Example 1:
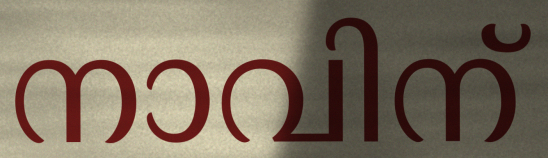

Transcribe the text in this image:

നാവിന്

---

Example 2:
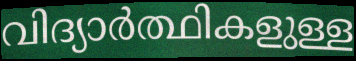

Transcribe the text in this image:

വിദ്യാർത്ഥികളുള്ള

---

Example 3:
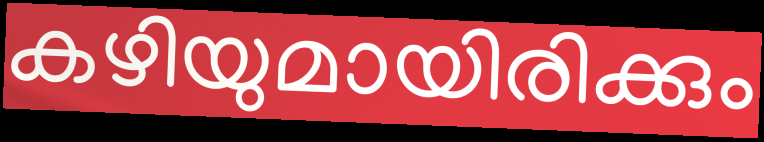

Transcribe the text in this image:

കഴിയുമായിരിക്കും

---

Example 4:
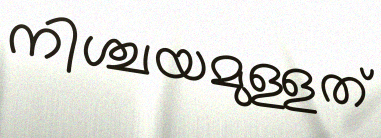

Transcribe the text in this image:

നിശ്ചയമുള്ളത്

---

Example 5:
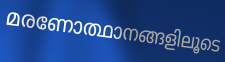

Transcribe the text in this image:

മരണോത്ഥാനങ്ങളിലൂടെ